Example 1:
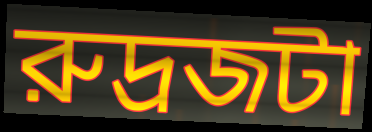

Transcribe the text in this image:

রুদ্রজটা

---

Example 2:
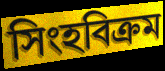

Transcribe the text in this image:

সিংহবিক্রম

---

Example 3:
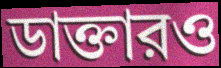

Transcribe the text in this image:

ডাক্তারও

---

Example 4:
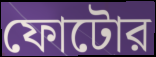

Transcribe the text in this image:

ফোটোর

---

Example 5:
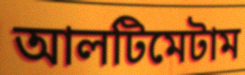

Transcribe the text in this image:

আলটিমেটাম